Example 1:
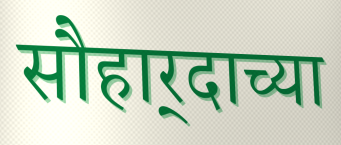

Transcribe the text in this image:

सौहार्दाच्या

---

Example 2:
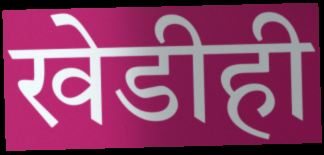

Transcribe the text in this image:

खेडीही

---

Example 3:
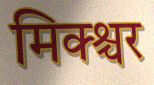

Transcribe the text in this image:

मिक्श्चर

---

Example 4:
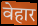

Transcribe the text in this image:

वेहार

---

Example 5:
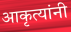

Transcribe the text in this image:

आकृत्यांनी